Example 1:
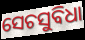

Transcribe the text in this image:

ସେଚସୁବିଧା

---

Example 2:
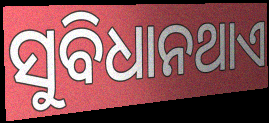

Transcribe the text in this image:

ସୁବିଧାନଥାଏ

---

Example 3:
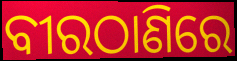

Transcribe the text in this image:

ବୀରଠାଣିରେ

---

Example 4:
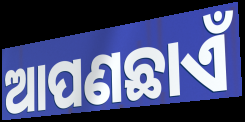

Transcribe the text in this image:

ଆପଣଛାଏଁ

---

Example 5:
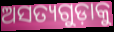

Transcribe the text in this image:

ଅସତ୍ୟଗୁଡ଼ାକୁ